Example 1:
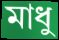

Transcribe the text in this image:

মাধু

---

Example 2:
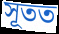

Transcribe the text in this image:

সূতত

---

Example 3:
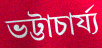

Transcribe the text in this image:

ভট্টাচাৰ্য্য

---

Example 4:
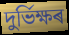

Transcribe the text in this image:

দুৰ্ভিক্ষৰ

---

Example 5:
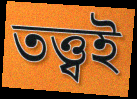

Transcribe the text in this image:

তত্ত্বই